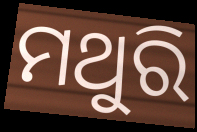
ମଥୁରି